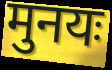
मुनयः